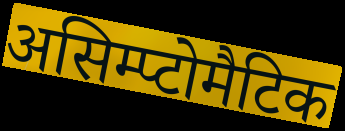
असिम्प्टोमैटिक